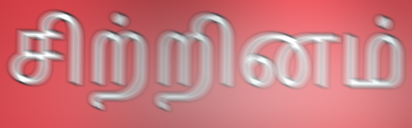
சிற்றினம்